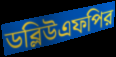
ডব্লিউএফপির